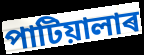
পাটিয়ালাৰ